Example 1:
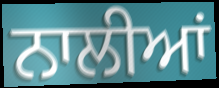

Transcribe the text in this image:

ਨਾਲੀਆਂ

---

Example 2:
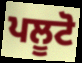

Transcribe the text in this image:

ਪਲੂਟੋ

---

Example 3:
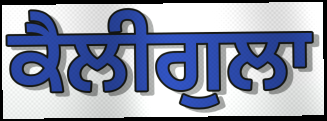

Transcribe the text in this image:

ਕੈਲੀਗੁਲਾ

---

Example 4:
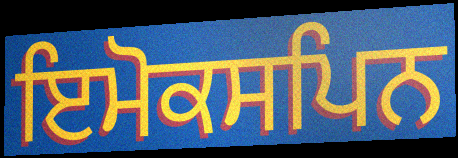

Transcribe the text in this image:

ਇਮੋਕਸਪਿਨ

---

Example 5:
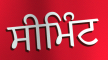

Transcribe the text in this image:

ਸੀਮਿੰਟ